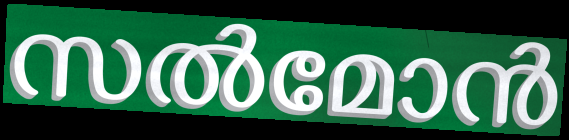
സൽമോൻ